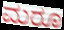
ಮರೂ